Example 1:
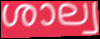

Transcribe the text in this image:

ശാല്വ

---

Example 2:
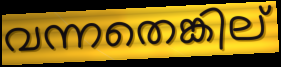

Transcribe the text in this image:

വന്നതെങ്കില്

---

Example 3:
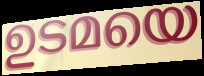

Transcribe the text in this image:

ഉടമയെ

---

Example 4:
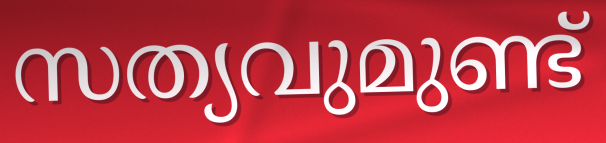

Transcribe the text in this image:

സത്യവുമുണ്ട്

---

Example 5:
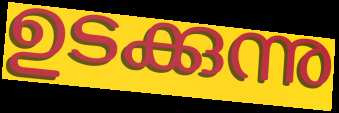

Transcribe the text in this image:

ഉടക്കുന്നു